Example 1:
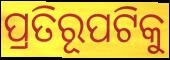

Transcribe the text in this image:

ପ୍ରତିରୂପଟିକୁ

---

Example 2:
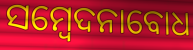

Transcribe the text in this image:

ସମ୍ବେଦନାବୋଧ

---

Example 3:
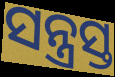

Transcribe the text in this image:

ସନ୍ତ୍ରସ୍ତ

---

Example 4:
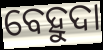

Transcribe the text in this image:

ବେହୁଦା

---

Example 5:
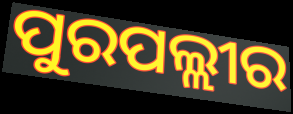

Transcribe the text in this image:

ପୁରପଲ୍ଲୀର